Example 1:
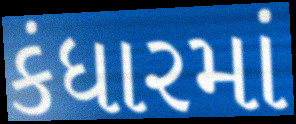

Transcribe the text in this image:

કંધારમાં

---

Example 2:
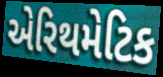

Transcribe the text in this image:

એરિથમેટિક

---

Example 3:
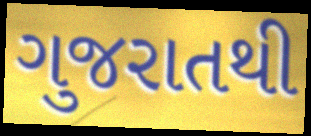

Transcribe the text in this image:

ગુજરાતથી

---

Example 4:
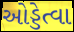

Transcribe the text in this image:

ઓડ્ડેત્વા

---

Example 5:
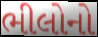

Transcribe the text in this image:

ભીલોનો